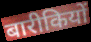
बारीकियों